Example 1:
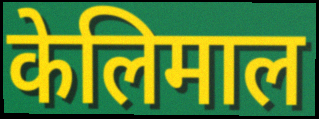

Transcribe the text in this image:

केलिमाल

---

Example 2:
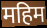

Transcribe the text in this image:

महिम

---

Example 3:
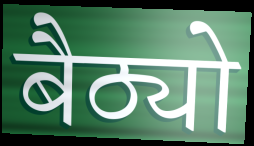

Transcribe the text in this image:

बैठ्यो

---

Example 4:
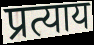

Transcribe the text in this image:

प्रत्याय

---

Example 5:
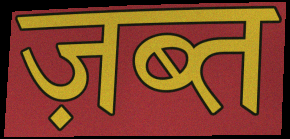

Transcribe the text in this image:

ज़ब्त